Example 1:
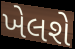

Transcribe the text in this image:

ખેલશે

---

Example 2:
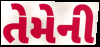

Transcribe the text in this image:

તેમેની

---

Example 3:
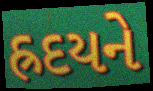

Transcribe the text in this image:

હ્રદયને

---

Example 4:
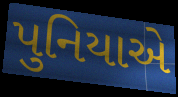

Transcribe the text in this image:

પુનિયાએ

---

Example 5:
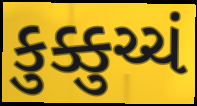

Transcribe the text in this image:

કુક્કુચ્ચં